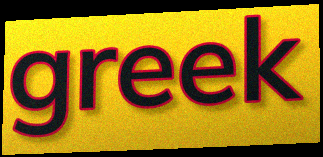
greek